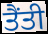
ਤੈਂਤੀ